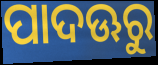
ପାଦଊରୁ